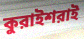
কুরাইশরাই